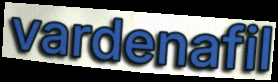
vardenafil